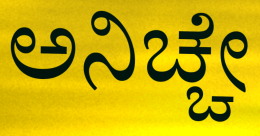
ಅನಿಚ್ಚೇ